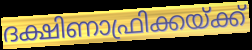
ദക്ഷിണാഫ്രിക്കയ്ക്ക്